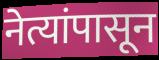
नेत्यांपासून